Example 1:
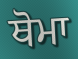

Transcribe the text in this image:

ਥੋਮਾ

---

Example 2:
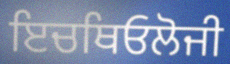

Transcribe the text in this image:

ਇਚਥਿਓਲੋਜੀ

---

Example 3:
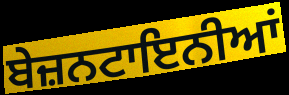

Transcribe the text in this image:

ਬੇਜ਼ਨਟਾਇਨੀਆਂ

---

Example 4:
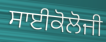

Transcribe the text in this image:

ਸਾਈਕੋਲੋਜੀ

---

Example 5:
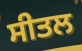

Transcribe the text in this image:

ਸੀਤਲ